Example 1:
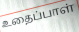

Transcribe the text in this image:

உதைப்பாள்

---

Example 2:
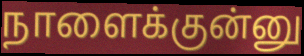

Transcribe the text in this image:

நாளைக்குன்னு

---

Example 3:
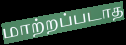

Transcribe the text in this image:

மாற்றப்படாத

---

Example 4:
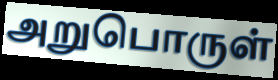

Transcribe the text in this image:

அறுபொருள்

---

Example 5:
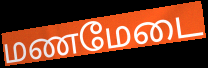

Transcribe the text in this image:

மணமேடை